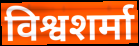
विश्वशर्मा